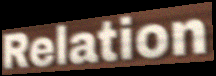
Relation